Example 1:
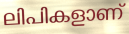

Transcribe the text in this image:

ലിപികളാണ്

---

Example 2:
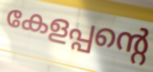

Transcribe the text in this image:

കേളപ്പന്റെ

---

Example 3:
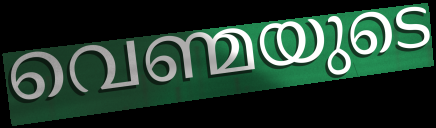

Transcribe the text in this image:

വെണ്മയുടെ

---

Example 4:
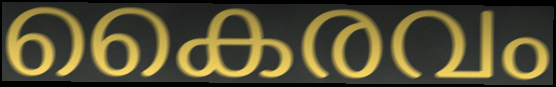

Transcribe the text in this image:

കൈരവം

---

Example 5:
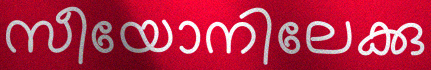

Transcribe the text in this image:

സീയോനിലേക്കു